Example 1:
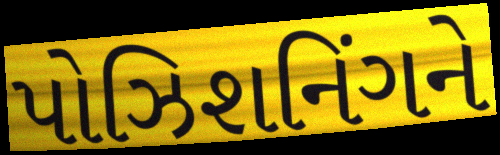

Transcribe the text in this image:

પોઝિશનિંગને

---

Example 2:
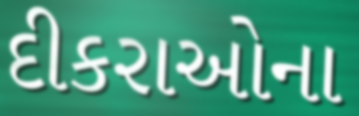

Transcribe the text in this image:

દીકરાઓના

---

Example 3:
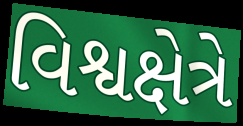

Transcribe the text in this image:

વિશ્વક્ષેત્રે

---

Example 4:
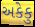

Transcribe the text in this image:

અકેકુ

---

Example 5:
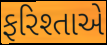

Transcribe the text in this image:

ફરિશ્તાએ